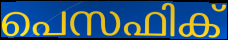
പെസഫിക്